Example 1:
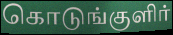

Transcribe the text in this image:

கொடுங்குளிர்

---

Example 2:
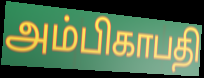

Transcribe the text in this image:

அம்பிகாபதி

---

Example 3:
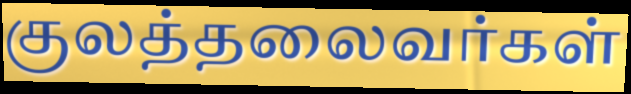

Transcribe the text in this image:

குலத்தலைவர்கள்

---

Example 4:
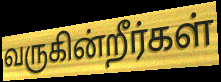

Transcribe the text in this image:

வருகின்றீர்கள்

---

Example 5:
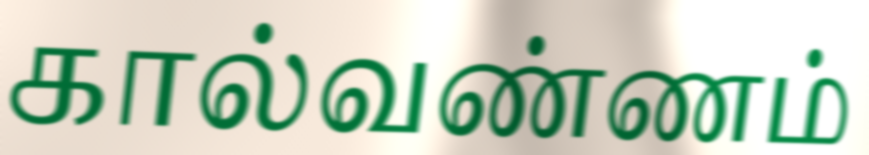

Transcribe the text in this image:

கால்வண்ணம்